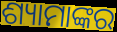
ଶ୍ୟାମାଙ୍କର